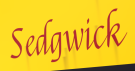
Sedgwick